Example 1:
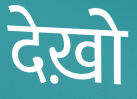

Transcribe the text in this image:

देख़ो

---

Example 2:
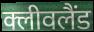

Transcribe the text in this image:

क्‍लीवलैंड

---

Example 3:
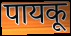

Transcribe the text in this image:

पायकू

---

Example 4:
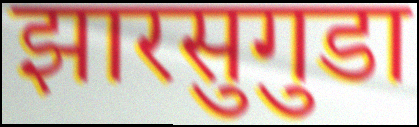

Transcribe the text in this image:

झारसुगुडा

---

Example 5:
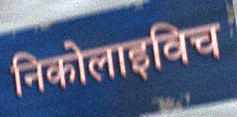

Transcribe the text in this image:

निकोलाइविच